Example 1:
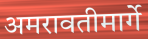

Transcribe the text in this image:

अमरावतीमार्गे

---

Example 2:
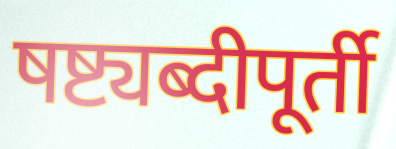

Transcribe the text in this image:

षष्ट्यब्दीपूर्ती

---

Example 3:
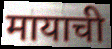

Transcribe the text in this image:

मायाची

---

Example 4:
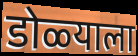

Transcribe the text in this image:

डोळ्याला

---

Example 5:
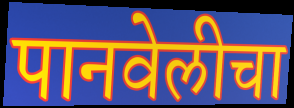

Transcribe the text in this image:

पानवेलीचा